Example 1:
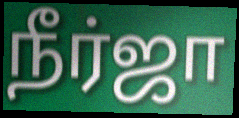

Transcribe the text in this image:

நீர்ஜா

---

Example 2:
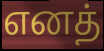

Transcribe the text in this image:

எனத்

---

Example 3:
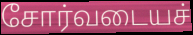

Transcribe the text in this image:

சோர்வடையச்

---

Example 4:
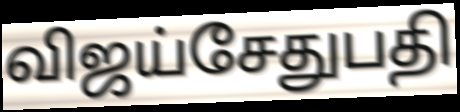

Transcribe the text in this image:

விஜய்சேதுபதி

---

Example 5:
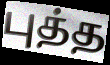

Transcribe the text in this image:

புத்த